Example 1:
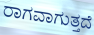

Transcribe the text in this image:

ರಾಗವಾಗುತ್ತದೆ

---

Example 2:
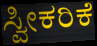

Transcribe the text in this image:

ಸ್ವೀಕರಿಕೆ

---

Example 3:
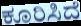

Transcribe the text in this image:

ಕೂರಿಸಿದೆ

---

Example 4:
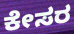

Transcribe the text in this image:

ಕೇಸರ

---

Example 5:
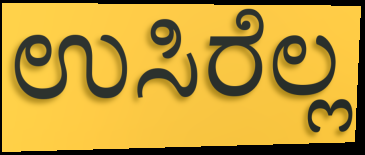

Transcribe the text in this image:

ಉಸಿರೆಲ್ಲ